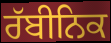
ਰੱਬੀਨਿਕ